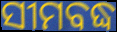
ସୀମବଦ୍ଧ